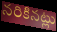
నరికినట్లు